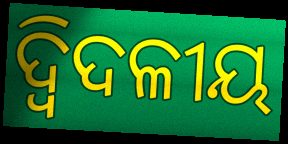
ଦ୍ବିଦଳୀୟ